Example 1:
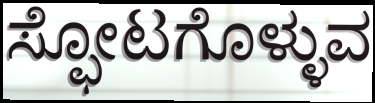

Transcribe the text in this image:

ಸ್ಫೋಟಗೊಳ್ಳುವ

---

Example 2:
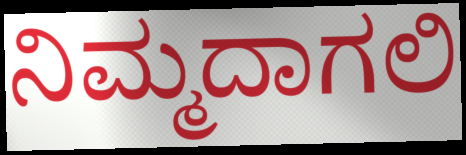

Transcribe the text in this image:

ನಿಮ್ಮದಾಗಲಿ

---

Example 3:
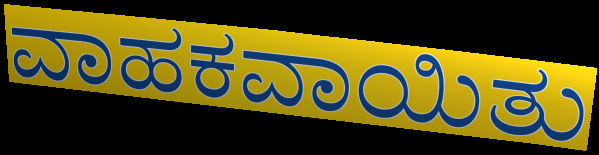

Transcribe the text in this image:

ವಾಹಕವಾಯಿತು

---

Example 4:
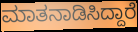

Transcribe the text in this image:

ಮಾತನಾಡಿಸಿದ್ದಾರೆ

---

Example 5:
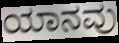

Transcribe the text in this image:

ಯಾನವು